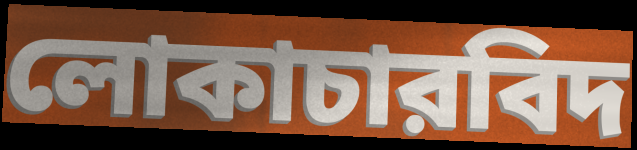
লোকাচারবিদ